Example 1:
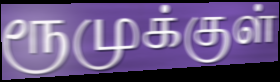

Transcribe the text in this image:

ரூமுக்குள்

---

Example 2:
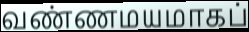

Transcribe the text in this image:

வண்ணமயமாகப்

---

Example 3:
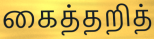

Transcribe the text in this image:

கைத்தறித்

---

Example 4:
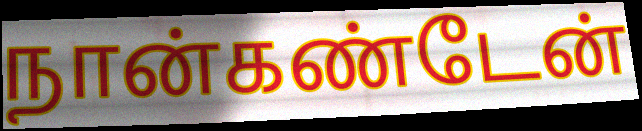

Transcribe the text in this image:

நான்கண்டேன்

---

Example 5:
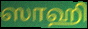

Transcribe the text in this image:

ஸாஹி